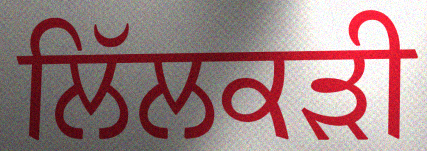
ਲਿੱਲਕੜੀ